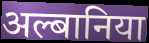
अल्बानिया